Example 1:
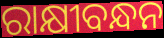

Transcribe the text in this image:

ରାକ୍ଷୀବନ୍ଧନ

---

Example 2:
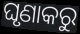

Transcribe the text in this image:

ଘୃଣାକରୁ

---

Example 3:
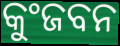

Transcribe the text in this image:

କୁଂଜବନ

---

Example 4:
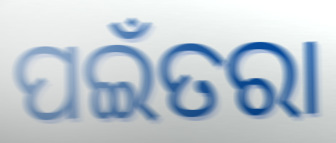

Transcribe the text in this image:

ପଇଁତରା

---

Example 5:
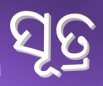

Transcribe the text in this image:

ସୂତ୍ର